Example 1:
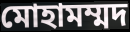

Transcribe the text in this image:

মোহামম্মদ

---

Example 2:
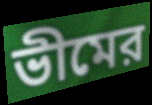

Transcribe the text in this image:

ভীমের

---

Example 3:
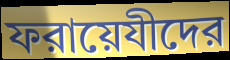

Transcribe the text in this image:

ফরায়েযীদের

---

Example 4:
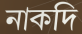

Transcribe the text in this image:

নাকদি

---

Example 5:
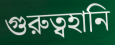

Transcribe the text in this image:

গুরুত্বহানি